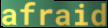
afraid